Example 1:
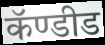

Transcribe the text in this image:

कॅण्डीड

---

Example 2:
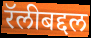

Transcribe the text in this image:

रॅलीबद्दल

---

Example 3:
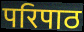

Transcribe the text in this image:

परिपाठ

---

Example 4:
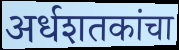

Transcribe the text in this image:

अर्धशतकांचा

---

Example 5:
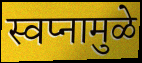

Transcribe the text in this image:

स्वप्नामुळे